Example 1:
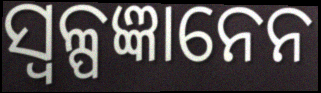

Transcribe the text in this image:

ସ୍ଵଳ୍ପଜ୍ଞାନେନ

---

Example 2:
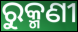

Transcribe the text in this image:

ରୁକ୍ମଣୀ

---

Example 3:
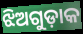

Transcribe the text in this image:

ଝିଅଗୁଡ଼ାକ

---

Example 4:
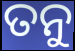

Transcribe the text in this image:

ତନୁ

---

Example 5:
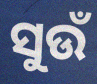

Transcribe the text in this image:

ସୁଉଁ